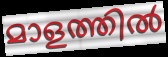
മാളത്തിൽ